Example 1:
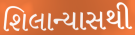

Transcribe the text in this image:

શિલાન્યાસથી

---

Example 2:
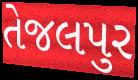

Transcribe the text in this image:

તેજલપુર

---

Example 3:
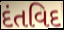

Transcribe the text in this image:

દંતવિદ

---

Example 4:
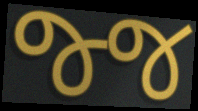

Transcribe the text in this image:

જ્જ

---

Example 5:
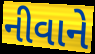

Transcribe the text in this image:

નીવાને